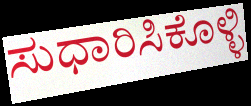
ಸುಧಾರಿಸಿಕೊಳ್ಳಿ